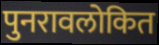
पुनरावलोकित